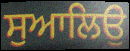
ਸੁਆਲਿਉ